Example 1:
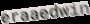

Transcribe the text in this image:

eraaedwin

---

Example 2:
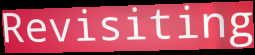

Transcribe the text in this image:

Revisiting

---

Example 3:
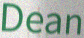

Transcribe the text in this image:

Dean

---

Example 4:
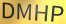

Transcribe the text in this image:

DMHP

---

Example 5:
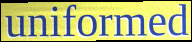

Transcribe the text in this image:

uniformed